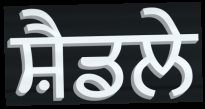
ਸ਼ੈਡਲੇ